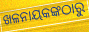
ଖଳନାୟକଙ୍କଠାରୁ